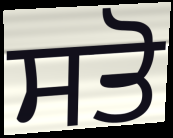
ਸਤੋ